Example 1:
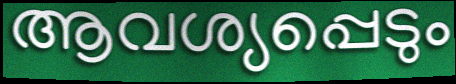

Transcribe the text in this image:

ആവശ്യപ്പെടും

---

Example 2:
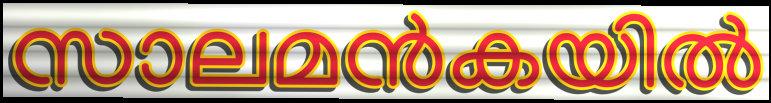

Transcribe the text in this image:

സാലമൻകയിൽ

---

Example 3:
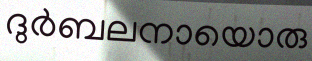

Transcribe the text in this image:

ദുർബലനായൊരു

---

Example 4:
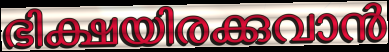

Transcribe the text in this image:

ഭിക്ഷയിരക്കുവാൻ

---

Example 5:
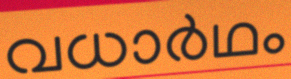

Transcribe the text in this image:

വധാർഥം